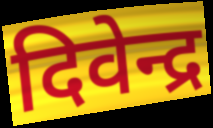
दिवेन्द्र